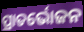
ପ୍ରାତର୍ଭୋଜନ